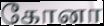
கோனா